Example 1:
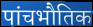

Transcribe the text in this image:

पांचभौतिक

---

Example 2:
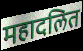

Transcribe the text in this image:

महादलित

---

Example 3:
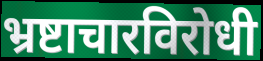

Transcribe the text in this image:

भ्रष्टाचारविरोधी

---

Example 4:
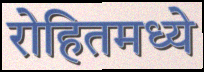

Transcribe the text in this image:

रोहितमध्ये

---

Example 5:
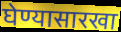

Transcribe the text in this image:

घेण्यासारखा